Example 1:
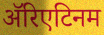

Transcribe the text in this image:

ॲरिएटिनम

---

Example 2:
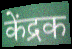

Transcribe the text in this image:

केंद्रक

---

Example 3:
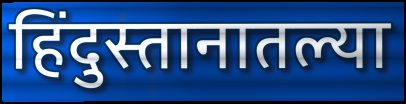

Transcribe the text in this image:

हिंदुस्तानातल्या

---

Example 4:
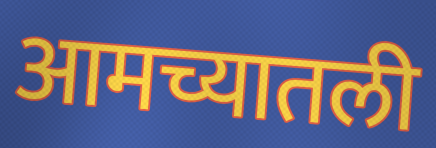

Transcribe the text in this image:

आमच्यातली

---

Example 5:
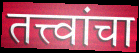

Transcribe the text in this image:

तत्त्वांचा